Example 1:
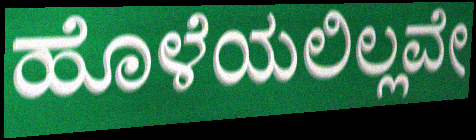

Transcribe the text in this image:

ಹೊಳೆಯಲಿಲ್ಲವೇ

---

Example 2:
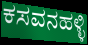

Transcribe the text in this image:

ಕಸವನಹಳ್ಳಿ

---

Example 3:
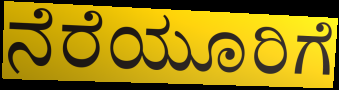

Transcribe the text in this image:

ನೆರೆಯೂರಿಗೆ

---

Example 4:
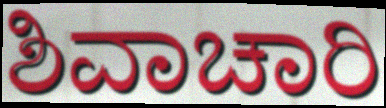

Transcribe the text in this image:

ಶಿವಾಚಾರಿ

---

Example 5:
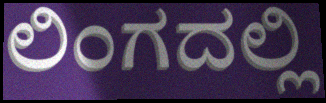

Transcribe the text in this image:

ಲಿಂಗದಲ್ಲಿ